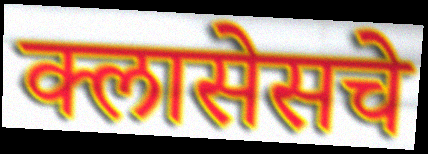
क्लासेसचे